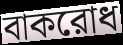
বাকরোধ